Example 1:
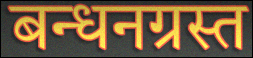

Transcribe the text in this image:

बन्धनग्रस्त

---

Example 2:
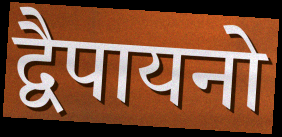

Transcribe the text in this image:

द्वैपायनो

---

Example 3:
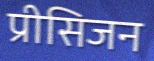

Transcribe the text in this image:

प्रीसिजन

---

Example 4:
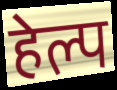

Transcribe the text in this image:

हेल्‍प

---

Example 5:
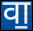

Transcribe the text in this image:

वा॒